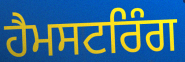
ਹੈਮਸਟਰਿੰਗ